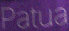
Patua